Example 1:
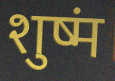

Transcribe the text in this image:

शुष्मं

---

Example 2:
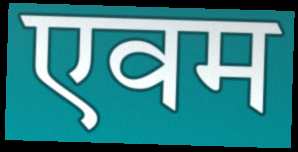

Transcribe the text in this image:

एवम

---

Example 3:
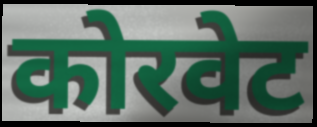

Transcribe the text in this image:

कोरवेट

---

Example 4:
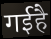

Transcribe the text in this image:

गईहै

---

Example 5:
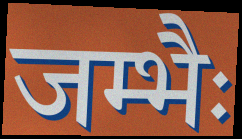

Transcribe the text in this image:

जम्भैः